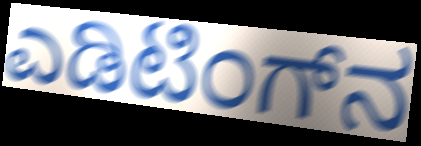
ಎಡಿಟಿಂಗ್‌ನ